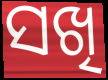
ସଖି